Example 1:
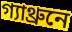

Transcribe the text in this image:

গ্যাথ্রুনে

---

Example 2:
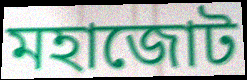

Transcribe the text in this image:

মহাজোট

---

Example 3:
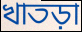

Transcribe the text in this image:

খাতড়া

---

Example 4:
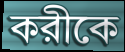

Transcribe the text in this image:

করীকে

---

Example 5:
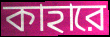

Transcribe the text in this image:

কাহারে